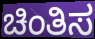
ಚಿಂತಿಸ